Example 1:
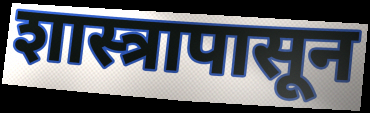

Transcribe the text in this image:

शास्त्रापासून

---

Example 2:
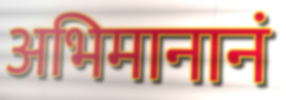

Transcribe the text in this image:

अभिमानानं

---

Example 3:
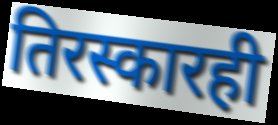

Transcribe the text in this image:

तिरस्कारही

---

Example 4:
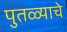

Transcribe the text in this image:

पुतळ्याचे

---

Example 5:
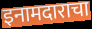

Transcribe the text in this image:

इनामदाराचा